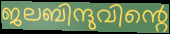
ജലബിന്ദുവിന്റെ